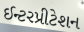
ઈન્ટરપ્રીટેશન